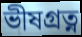
ভীষগ্ৰত্ন